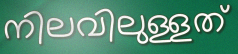
നിലവിലുള്ളത്